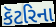
કૅટરિના